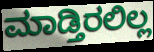
ಮಾಡ್ತಿರಲಿಲ್ಲ